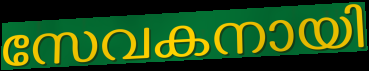
സേവകനായി